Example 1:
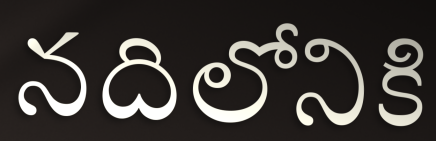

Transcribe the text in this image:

నదిలోనికి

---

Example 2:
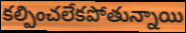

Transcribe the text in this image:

కల్పించలేకపోతున్నాయి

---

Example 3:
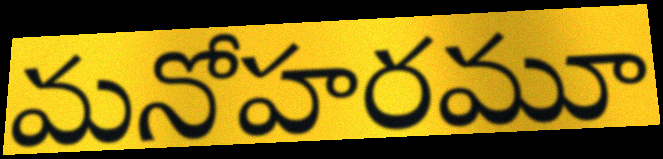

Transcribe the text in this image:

మనోహరమూ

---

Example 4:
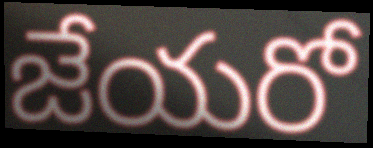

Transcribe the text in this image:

జేయరో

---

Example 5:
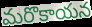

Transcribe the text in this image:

మరొకాయన